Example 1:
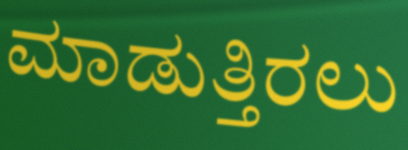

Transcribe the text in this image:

ಮಾಡುತ್ತಿರಲು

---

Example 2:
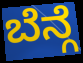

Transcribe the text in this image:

ಬೆನ್ಗೆ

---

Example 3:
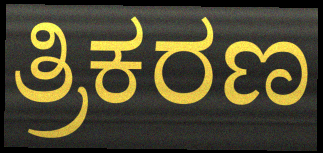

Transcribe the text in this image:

ತ್ರಿಕರಣ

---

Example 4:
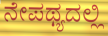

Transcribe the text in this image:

ನೇಪಥ್ಯದಲ್ಲಿ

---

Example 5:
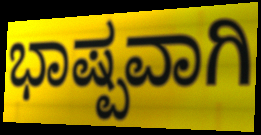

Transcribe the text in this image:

ಭಾಷ್ಪವಾಗಿ